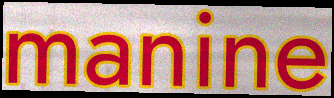
manine